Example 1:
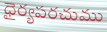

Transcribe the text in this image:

ధైర్యపరచుము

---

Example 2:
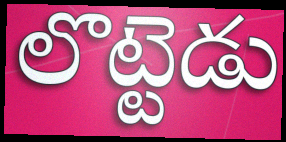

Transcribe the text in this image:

లొట్టెడు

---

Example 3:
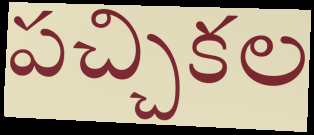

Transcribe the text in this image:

పచ్చికల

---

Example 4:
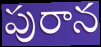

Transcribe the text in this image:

పురాన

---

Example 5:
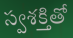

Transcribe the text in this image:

స్వశక్తితో